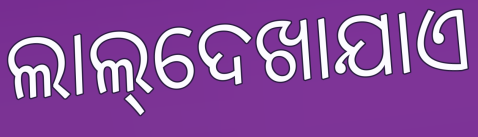
ଲାଲ୍‌ଦେଖାଯାଏ